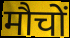
मौचों